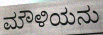
ಮೌಳಿಯನು